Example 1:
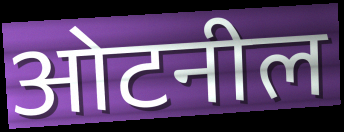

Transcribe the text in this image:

ओटनील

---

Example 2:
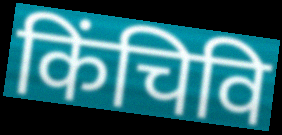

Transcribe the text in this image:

किंचिवि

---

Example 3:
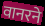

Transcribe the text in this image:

वानरने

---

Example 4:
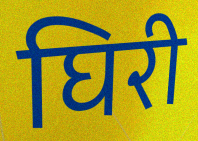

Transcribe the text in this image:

घिरी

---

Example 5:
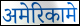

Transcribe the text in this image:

अमेरिकामे